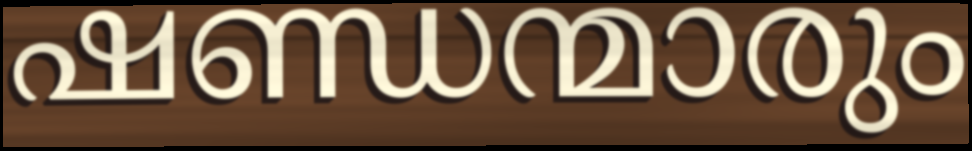
ഷണ്ഡന്മാരും